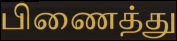
பிணைத்து